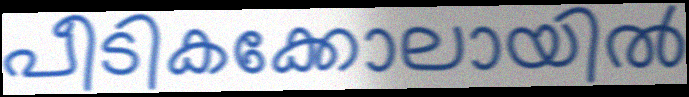
പീടികക്കോലായിൽ